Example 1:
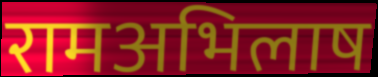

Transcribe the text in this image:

रामअभिलाष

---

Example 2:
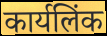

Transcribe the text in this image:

कार्यलिंक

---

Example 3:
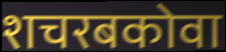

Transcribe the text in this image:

शचरबकोवा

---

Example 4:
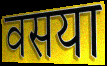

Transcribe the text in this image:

वसया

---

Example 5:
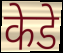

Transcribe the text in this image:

केडे